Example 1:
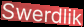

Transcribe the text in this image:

Swerdlik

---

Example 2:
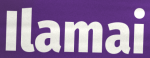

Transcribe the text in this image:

Ilamai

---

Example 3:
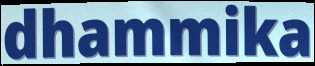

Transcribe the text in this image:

dhammika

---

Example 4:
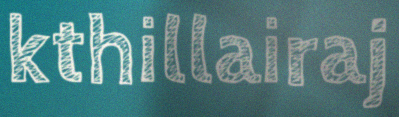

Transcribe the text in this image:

kthillairaj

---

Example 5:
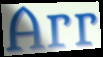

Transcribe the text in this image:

Arr